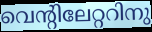
വെന്റിലേറ്ററിനു